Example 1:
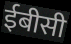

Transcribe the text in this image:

ईबीसी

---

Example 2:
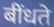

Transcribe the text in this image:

बींधते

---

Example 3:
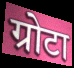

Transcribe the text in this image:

ग्रोटा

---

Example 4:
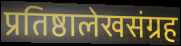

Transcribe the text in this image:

प्रतिष्ठालेखसंग्रह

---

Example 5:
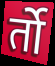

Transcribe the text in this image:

र्तो